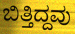
ಬಿತ್ತಿದ್ದವು